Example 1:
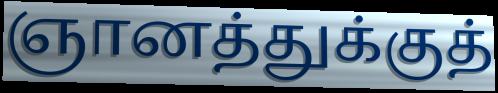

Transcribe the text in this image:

ஞானத்துக்குத்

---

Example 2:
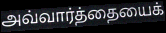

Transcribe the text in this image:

அவ்வார்த்தையைக்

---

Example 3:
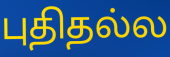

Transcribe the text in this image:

புதிதல்ல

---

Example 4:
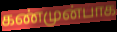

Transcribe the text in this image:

கண்முன்பாக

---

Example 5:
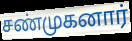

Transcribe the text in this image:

சண்முகனார்